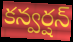
కన్వర్షన్